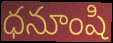
ధనూంషి